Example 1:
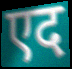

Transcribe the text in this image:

एद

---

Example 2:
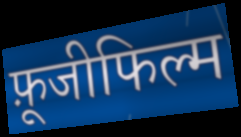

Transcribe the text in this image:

फ़ूजीफिल्म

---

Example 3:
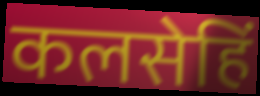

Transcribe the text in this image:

कलसेहिं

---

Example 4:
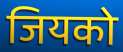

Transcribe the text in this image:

जियको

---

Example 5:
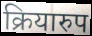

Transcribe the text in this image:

क्रियारुप